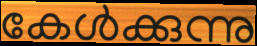
കേൾക്കുന്നു